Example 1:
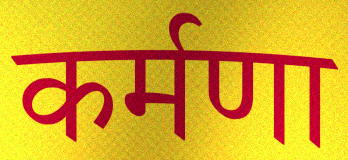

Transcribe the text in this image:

कर्मणा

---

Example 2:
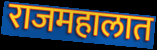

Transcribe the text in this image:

राजमहालात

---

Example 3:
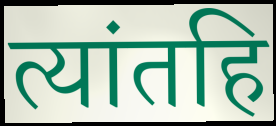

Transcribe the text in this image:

त्यांतहि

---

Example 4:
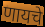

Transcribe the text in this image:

णायचे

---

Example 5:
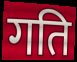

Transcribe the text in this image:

गति